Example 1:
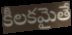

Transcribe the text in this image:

కీలకమైతే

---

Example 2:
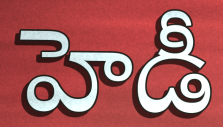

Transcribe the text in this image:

హెడీ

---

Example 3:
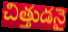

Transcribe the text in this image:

చిత్తుడనై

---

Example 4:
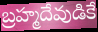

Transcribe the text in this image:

బ్రహ్మదేవుడికే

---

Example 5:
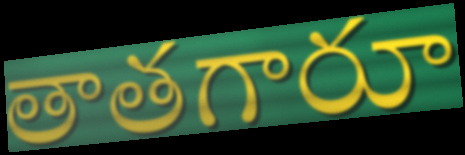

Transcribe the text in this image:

తాతగారూ